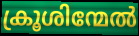
ക്രൂശിന്മേൽ